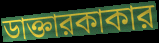
ডাক্তারকাকার